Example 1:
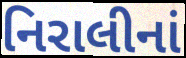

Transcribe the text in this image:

નિરાલીનાં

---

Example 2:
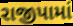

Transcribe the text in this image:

રાજીપામાં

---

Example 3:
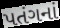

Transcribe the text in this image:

પતંગનાં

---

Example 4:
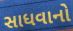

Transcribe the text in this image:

સાધવાનો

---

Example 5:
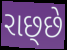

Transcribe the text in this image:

રાછ્છે